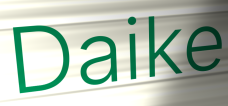
Daike